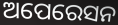
ଅପେରେସନ